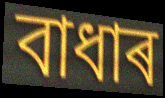
বাধাৰ